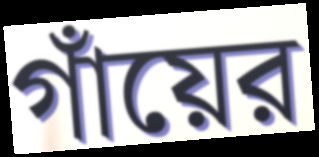
গাঁয়ের